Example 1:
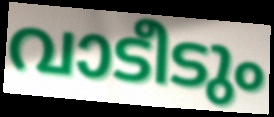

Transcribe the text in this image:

വാടീടും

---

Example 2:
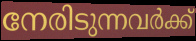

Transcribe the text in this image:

നേരിടുന്നവർക്ക്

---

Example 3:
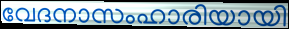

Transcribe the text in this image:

വേദനാസംഹാരിയായി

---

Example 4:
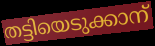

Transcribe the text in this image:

തട്ടിയെടുക്കാന്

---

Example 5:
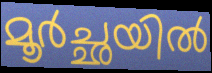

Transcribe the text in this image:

മൂർച്ഛയിൽ